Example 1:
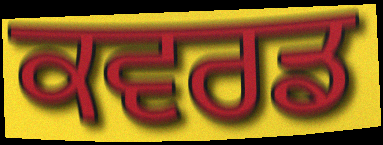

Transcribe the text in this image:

ਕਵਰਡ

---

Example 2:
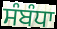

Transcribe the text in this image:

ਸੰਬੰਧਾ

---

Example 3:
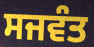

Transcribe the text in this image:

ਸਜਵੰਤ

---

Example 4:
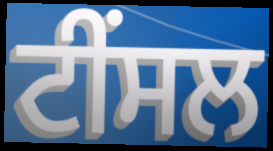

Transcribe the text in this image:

ਟੀਂਸਲ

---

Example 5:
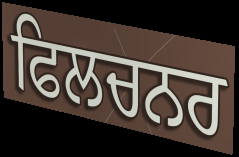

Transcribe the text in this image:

ਫਿਲਚਨਰ